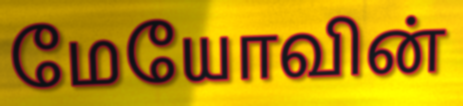
மேயோவின்